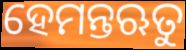
ହେମନ୍ତଋତୁ